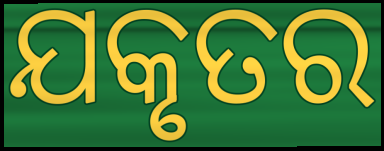
ଯକୃତର